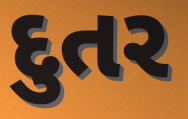
દુતર